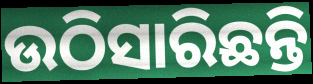
ଉଠିସାରିଛନ୍ତି